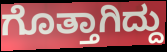
ಗೊತ್ತಾಗಿದ್ದು